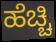
ಹೆಚ್ಚಿ